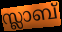
സ്ലാബ്